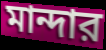
মান্দার